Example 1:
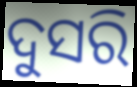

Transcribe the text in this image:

ଦୁସରି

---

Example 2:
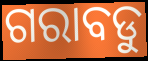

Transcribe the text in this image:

ଗରାବଡୁ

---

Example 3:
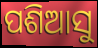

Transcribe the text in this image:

ପଶିଆସୁ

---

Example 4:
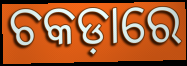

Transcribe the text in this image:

ଚକଡ଼ାରେ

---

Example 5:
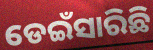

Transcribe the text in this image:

ଡେଇଁସାରିଛି